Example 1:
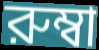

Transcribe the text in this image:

রুম্বা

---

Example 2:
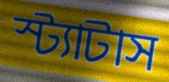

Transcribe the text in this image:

স্ট্যাটাস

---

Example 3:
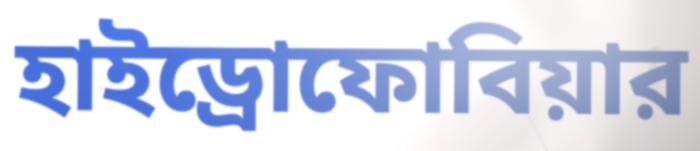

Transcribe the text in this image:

হাইড্রোফোবিয়ার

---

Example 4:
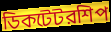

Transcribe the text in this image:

ডিকটেটরশিপ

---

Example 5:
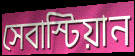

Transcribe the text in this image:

সেবাস্টিয়ান